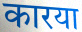
कारया